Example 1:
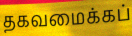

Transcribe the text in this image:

தகவமைக்கப்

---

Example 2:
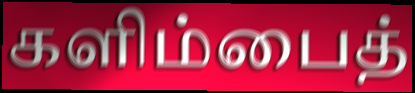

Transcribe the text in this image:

களிம்பைத்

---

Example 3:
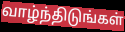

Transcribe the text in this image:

வாழ்ந்திடுங்கள்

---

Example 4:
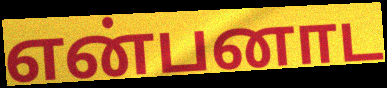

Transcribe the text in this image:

என்பனாட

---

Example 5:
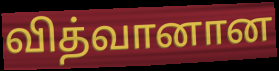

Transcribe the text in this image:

வித்வானான